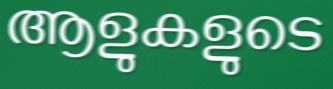
ആളുകളുടെ